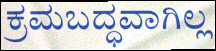
ಕ್ರಮಬದ್ಧವಾಗಿಲ್ಲ